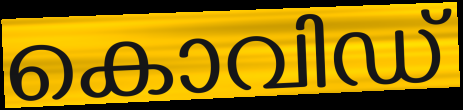
കൊവിഡ്